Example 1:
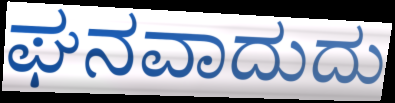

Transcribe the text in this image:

ಘನವಾದುದು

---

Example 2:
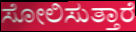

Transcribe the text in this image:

ಸೋಲಿಸುತ್ತಾರೆ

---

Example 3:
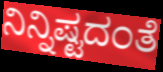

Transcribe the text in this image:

ನಿನ್ನಿಷ್ಟದಂತೆ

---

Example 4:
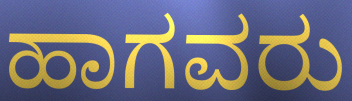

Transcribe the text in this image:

ಹಾಗವರು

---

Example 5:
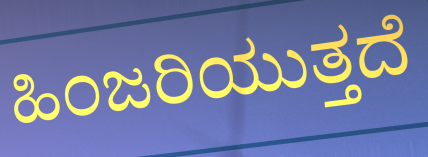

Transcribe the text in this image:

ಹಿಂಜರಿಯುತ್ತದೆ